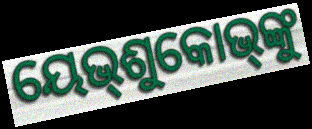
ୟେଭ୍‌ଶୁକୋଭ୍‌ଙ୍କୁ